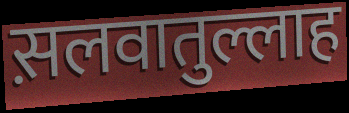
स़लवातुल्लाह